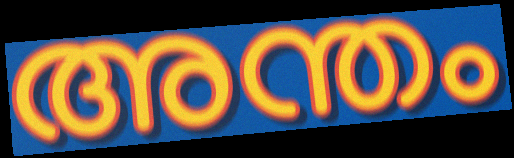
അന്തം